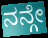
ನನ್ಗೇ